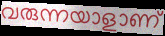
വരുന്നയാളാണ്